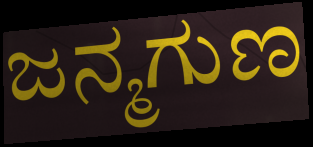
ಜನ್ಮಗುಣ